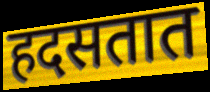
हदसतात